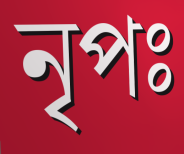
নৃপঃ